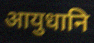
आयुधानि